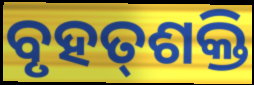
ବୃହତ୍‌ଶକ୍ତି